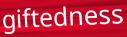
giftedness